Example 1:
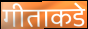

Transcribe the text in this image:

गीताकडे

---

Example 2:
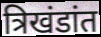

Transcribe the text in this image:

त्रिखंडांत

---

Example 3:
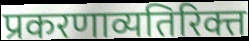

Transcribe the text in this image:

प्रकरणाव्यतिरिक्त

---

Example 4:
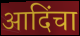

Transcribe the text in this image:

आदिंचा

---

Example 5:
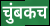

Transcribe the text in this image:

चुंबकच